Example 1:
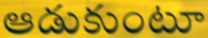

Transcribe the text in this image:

ఆడుకుంటూ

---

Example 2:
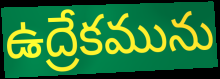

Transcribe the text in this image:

ఉద్రేకమును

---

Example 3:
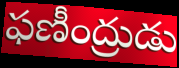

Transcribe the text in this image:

ఫణీంద్రుడు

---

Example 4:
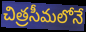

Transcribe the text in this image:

చిత్రసీమలోనే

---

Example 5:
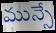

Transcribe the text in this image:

మున్సే